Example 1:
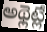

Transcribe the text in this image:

అథ్లెట్లే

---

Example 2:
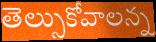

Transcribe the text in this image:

తెల్సుకోవాలన్న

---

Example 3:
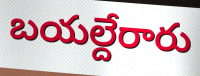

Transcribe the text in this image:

బయల్దేరారు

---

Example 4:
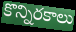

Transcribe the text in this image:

కొన్నిరకాలు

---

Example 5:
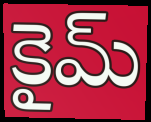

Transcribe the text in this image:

కైమ్